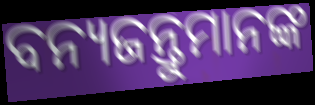
ବନ୍ୟଜନ୍ତୁମାନଙ୍କ